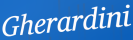
Gherardini